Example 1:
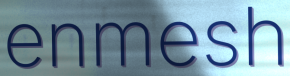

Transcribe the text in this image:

enmesh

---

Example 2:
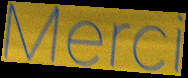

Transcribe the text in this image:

Merci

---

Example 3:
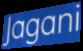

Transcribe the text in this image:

Jagani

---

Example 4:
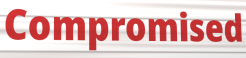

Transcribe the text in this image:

Compromised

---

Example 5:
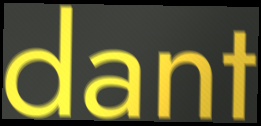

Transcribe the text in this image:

dant